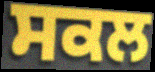
ਸਕਲ